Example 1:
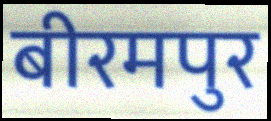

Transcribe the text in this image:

बीरमपुर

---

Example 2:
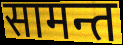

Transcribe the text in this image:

सामन्त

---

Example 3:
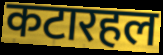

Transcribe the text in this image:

कटारहल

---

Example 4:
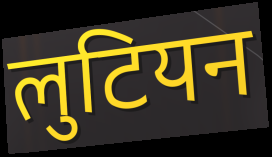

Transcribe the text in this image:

लुटियन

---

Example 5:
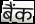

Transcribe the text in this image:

बैंक